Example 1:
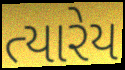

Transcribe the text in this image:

ત્યારેય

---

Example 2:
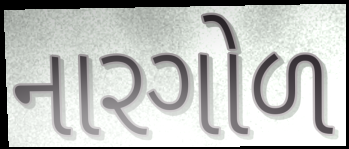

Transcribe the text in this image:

નારગોળ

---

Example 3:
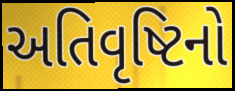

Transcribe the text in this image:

અતિવૃષ્ટિનો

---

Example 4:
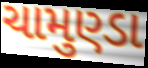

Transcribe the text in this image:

ચામુણ્ડા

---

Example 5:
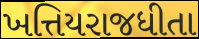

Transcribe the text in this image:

ખત્તિયરાજધીતા